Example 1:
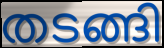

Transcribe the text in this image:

തടങ്ങി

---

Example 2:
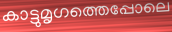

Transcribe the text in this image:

കാട്ടുമൃഗത്തെപ്പോലെ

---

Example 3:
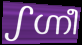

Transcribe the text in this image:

ഽഗ്നീ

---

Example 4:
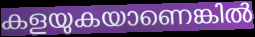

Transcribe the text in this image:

കളയുകയാണെങ്കിൽ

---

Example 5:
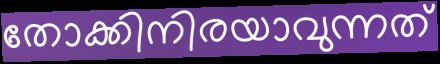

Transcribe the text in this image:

തോക്കിനിരയാവുന്നത്